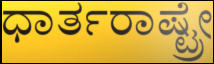
ಧಾರ್ತರಾಷ್ಟ್ರೇ